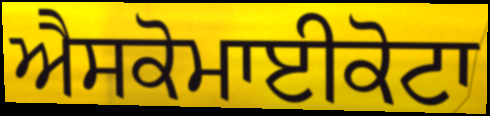
ਐਸਕੋਮਾਈਕੋਟਾ